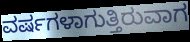
ವರ್ಷಗಳಾಗುತ್ತಿರುವಾಗ